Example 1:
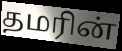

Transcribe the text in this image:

தமரின்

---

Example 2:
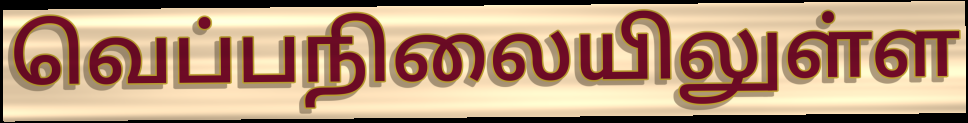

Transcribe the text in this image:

வெப்பநிலையிலுள்ள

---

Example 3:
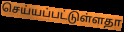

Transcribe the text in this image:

செய்யப்பட்டுள்ளதா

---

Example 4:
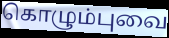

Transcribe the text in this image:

கொழும்புவை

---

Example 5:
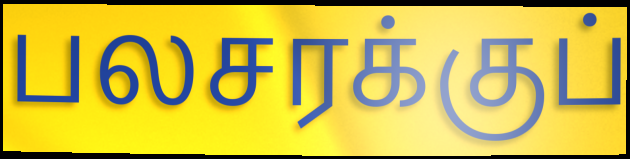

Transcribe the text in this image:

பலசரக்குப்